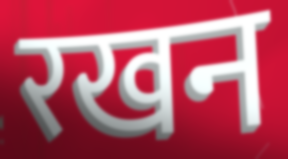
रखन